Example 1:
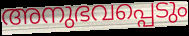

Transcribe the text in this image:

അനുഭവപ്പെടും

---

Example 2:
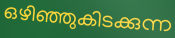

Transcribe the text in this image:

ഒഴിഞ്ഞുകിടക്കുന്ന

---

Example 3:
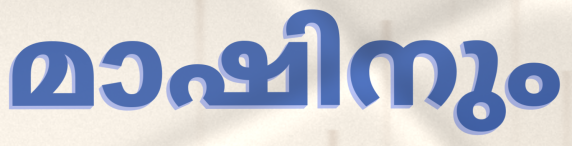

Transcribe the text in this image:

മാഷിനും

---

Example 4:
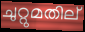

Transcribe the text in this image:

ചുറ്റുമതില്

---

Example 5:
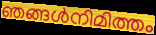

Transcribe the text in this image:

ഞങ്ങൾനിമിത്തം